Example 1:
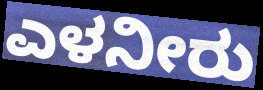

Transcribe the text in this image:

ಎಳನೀರು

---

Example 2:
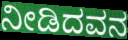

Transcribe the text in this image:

ನೀಡಿದವನ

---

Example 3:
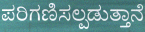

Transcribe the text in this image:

ಪರಿಗಣಿಸಲ್ಪಡುತ್ತಾನೆ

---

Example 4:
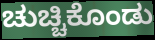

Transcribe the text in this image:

ಚುಚ್ಚಿಕೊಂಡು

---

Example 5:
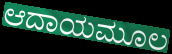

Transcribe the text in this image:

ಆದಾಯಮೂಲ